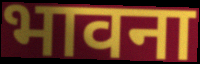
भावना